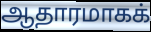
ஆதாரமாகக்